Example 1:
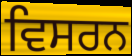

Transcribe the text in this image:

ਵਿਸਰਨ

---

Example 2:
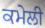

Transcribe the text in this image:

ਕਮੇਲੀ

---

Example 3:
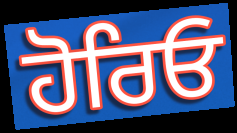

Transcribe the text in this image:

ਹੋਰਿਓ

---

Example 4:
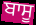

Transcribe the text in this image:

ਬਾਸੂ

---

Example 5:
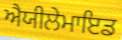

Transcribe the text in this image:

ਐਯੀਲੇਮਾਇਡ